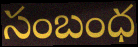
సంబంధ